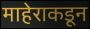
माहेराकडून